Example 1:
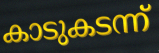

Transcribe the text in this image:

കാടുകടന്ന്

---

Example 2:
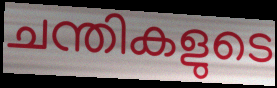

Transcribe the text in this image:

ചന്തികളുടെ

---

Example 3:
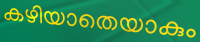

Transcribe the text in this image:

കഴിയാതെയാകും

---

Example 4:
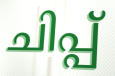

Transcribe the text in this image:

ചിപ്പ്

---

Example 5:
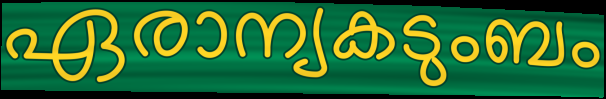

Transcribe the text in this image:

ഏരാന്യകടുംബം